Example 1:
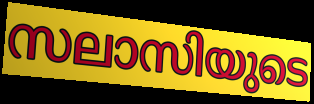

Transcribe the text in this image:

സലാസിയുടെ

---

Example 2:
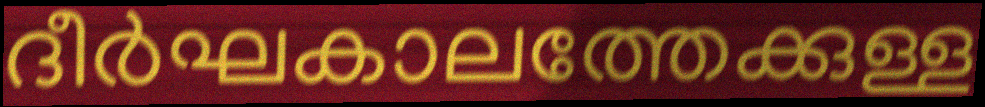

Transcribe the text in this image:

ദീർഘകാലത്തേക്കുള്ള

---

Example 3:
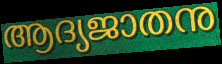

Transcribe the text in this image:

ആദ്യജാതനു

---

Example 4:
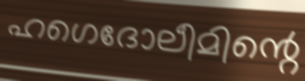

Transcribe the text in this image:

ഹഗെദോലീമിന്റെ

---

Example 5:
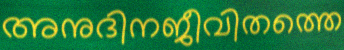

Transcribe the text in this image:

അനുദിനജീവിതത്തെ